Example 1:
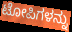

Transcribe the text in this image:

ಟೋಪಿಗಳನ್ನು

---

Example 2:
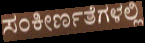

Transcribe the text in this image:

ಸಂಕೀರ್ಣತೆಗಳಲ್ಲಿ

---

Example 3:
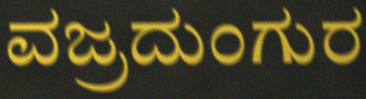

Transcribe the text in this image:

ವಜ್ರದುಂಗುರ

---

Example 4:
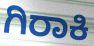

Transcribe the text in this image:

ಗಿರಾಕಿ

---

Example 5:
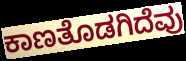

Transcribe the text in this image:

ಕಾಣತೊಡಗಿದೆವು